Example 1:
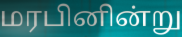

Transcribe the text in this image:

மரபினின்று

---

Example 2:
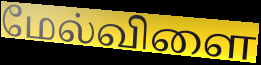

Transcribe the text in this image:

மேல்விளை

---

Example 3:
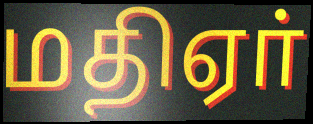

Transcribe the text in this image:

மதிஏர்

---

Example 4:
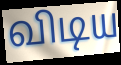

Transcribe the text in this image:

விடிய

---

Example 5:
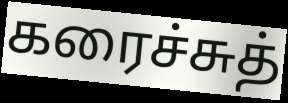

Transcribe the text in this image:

கரைச்சுத்